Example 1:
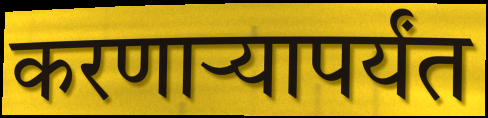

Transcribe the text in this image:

करणाऱ्यापर्यंत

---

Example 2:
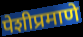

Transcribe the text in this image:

पेशीप्रमाणे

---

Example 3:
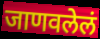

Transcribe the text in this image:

जाणवलेलं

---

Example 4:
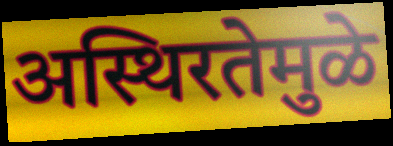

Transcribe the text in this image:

अस्थिरतेमुळे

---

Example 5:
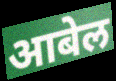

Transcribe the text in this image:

आबेल